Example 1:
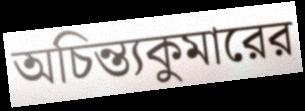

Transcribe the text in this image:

অচিন্ত্যকুমারের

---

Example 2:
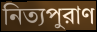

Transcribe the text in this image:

নিত্যপুরাণ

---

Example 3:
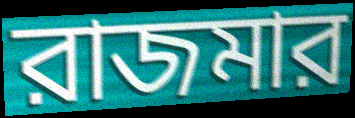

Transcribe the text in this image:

রাজমার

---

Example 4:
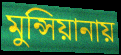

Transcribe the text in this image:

মুন্সিয়ানায়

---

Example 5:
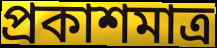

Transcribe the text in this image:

প্রকাশমাত্র